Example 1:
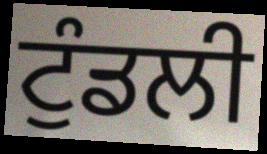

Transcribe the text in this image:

ਟੁੰਡਲੀ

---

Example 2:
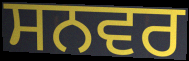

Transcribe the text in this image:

ਸਨਵਰ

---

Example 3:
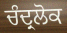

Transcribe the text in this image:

ਚੰਦ੍ਰਲੋਕ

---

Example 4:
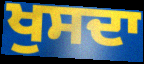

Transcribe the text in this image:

ਖੁਸਦਾ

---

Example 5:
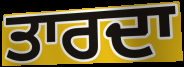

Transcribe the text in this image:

ਤਾਰਦਾ